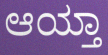
ಆಯ್ತಾ